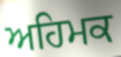
ਅਹਿਮਕ